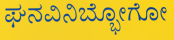
ಘನವಿನಿಬ್ಭೋಗೋ